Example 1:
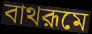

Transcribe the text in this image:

বাথরূমে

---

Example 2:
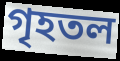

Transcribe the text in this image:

গৃহতল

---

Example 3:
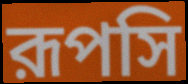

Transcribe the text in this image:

রূপসি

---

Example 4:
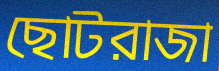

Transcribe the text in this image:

ছোটরাজা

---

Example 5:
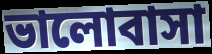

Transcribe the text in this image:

ভালোবাসা